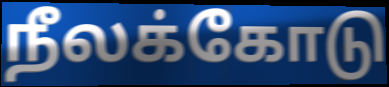
நீலக்கோடு